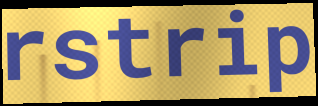
rstrip